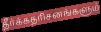
தீர்க்கதரிசனங்களும்